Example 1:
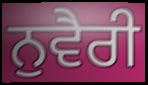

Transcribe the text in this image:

ਨੁਵੈਰੀ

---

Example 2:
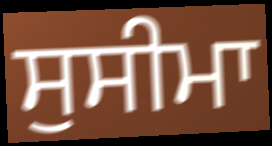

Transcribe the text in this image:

ਸੁਸੀਮਾ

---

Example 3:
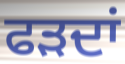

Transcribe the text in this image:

ਫੜਦਾਂ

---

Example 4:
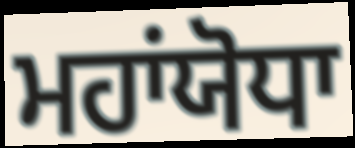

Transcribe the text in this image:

ਮਹਾਂਯੋਧਾ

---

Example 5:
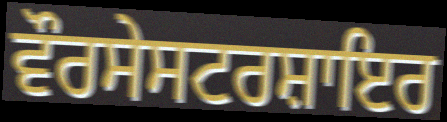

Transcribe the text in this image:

ਵੌਰਸੇਸਟਰਸ਼ਾਇਰ